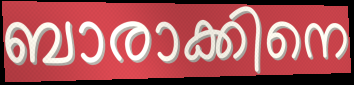
ബാരാക്കിനെ